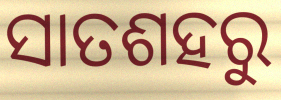
ସାତଶହରୁ